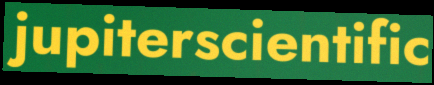
jupiterscientific